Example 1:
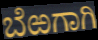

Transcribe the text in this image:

ಬೆಱಗಾಗಿ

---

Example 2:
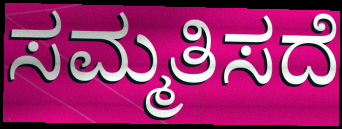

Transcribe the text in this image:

ಸಮ್ಮತಿಸದೆ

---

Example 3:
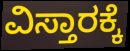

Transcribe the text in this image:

ವಿಸ್ತಾರಕ್ಕೆ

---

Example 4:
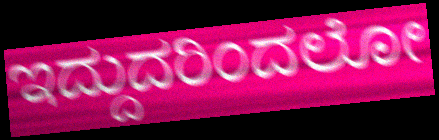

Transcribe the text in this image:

ಇದ್ದುದರಿಂದಲೋ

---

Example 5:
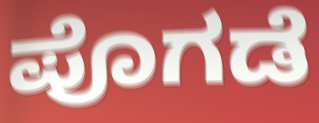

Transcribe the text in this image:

ಪೊಗಡೆ